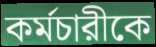
কর্মচারীকে